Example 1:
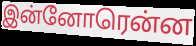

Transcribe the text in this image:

இன்னோரென்ன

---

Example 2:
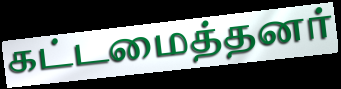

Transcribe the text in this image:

கட்டமைத்தனர்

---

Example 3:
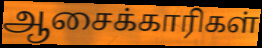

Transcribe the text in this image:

ஆசைக்காரிகள்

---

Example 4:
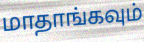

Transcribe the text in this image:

மாதாங்கவும்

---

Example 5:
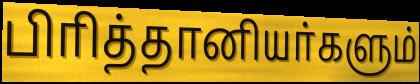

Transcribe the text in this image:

பிரித்தானியர்களும்